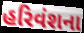
હરિવંશના